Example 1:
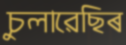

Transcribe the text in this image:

চুলাৱেছিৰ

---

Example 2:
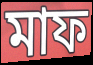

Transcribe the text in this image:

মাফ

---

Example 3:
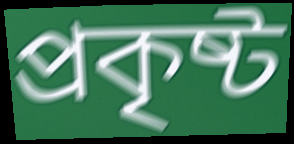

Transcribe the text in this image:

প্ৰকৃষ্ট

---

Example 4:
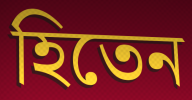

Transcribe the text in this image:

হিতেন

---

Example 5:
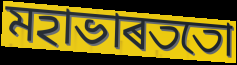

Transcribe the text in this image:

মহাভাৰততো